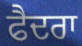
ਫੈਦਰਾ